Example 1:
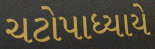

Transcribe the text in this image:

ચટોપાધ્યાયે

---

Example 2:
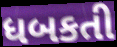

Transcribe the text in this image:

ધબકતી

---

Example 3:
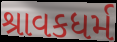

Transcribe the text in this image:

શ્રાવકધર્મ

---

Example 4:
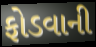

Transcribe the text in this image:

ફોડવાની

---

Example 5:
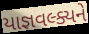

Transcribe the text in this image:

યાજ્ઞવલ્ક્યને